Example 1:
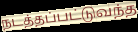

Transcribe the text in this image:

நடத்தப்பட்டுவந்த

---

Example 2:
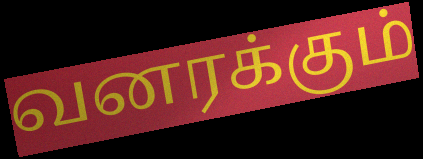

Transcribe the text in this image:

வனரக்கும்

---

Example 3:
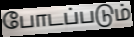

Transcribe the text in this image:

போடப்படும்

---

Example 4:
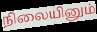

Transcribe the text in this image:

நிலையினும்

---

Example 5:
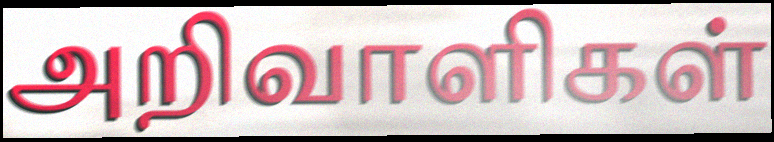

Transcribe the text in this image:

அறிவாளிகள்